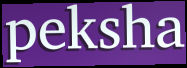
peksha